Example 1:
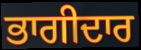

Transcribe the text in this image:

ਭਾਗੀਦਾਰ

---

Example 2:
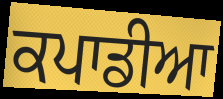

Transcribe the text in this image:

ਕਪਾਡੀਆ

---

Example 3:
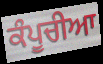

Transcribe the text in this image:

ਕੰਪੂਚੀਆ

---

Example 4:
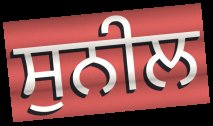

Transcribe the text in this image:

ਸੁਨੀਲ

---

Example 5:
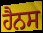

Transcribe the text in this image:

ਹੈਨਸ